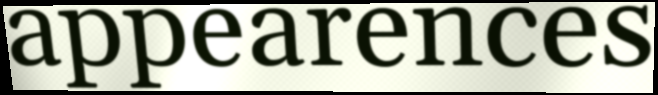
appearences